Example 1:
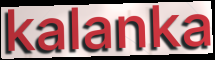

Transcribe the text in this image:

kalanka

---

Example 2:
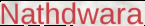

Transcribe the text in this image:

Nathdwara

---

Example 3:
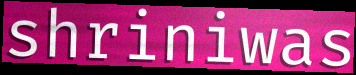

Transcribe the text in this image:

shriniwas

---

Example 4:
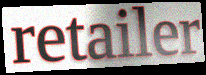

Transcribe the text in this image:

retailer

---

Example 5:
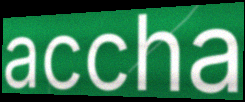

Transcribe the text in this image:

accha